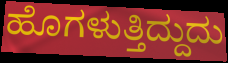
ಹೊಗಳುತ್ತಿದ್ದುದು